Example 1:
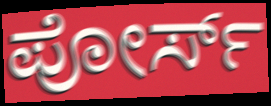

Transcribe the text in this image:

ಪೋರ್ಸ್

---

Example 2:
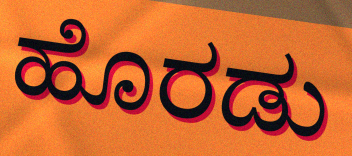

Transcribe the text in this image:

ಹೊರಡು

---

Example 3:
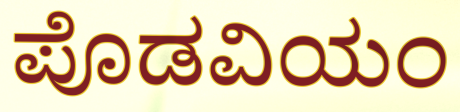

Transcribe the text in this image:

ಪೊಡವಿಯಂ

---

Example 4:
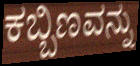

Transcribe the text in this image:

ಕಬ್ಬಿಣವನ್ನು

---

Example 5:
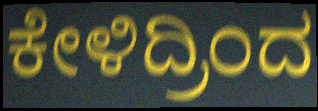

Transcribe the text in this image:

ಕೇಳಿದ್ರಿಂದ